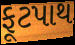
ફૂટપાથ